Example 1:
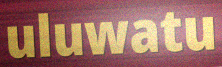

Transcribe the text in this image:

uluwatu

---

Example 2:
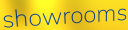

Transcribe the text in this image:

showrooms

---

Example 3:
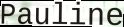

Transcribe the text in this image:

Pauline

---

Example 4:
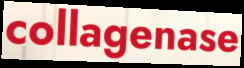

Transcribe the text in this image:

collagenase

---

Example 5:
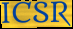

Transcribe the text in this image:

ICSR